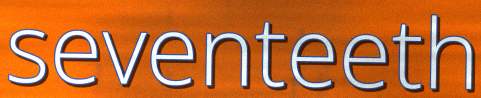
seventeeth